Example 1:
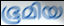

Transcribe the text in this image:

ഭൂമിയ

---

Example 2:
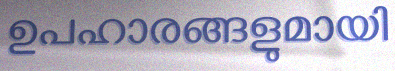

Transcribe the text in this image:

ഉപഹാരങ്ങളുമായി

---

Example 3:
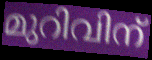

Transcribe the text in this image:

മുറിവിന്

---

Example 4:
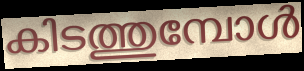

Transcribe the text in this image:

കിടത്തുമ്പോൾ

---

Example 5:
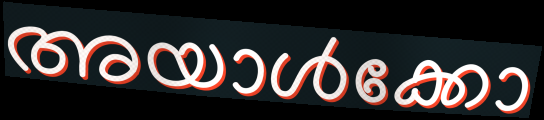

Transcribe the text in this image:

അയാൾക്കോ